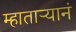
म्हाताऱ्यानं